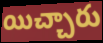
యిచ్చారు